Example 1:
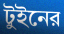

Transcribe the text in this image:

টুইনের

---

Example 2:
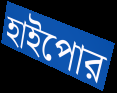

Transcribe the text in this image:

হাইপোর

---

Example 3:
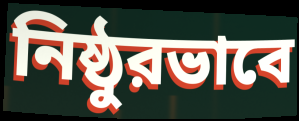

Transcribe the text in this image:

নিষ্ঠুরভাবে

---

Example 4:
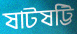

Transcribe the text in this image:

ষাটষট্টি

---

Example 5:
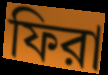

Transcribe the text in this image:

ফিরা